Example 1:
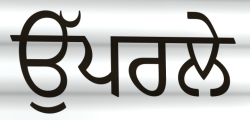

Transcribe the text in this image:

ਉੱਪਰਲੇ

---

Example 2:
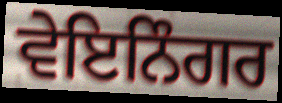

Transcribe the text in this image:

ਵੇਇਨਿੰਗਰ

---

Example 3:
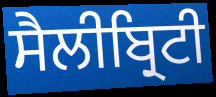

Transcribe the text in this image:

ਸੈਲੀਬ੍ਰਿਟੀ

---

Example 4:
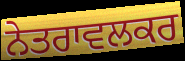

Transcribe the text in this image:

ਨੇਤਰਾਵਲਕਰ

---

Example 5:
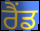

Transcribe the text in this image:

ਰੈਂਡ